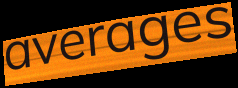
averages